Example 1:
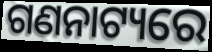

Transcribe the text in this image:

ଗଣନାଟ୍ୟରେ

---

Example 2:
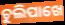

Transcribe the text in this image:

ଚୁଲିପାଖେ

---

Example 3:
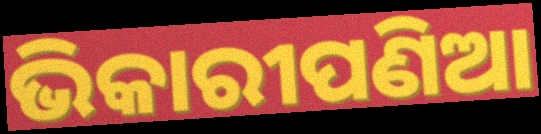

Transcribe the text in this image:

ଭିକାରୀପଣିଆ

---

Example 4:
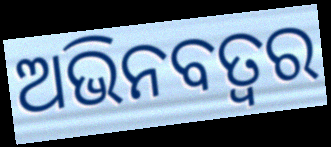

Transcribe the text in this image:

ଅଭିନବତ୍ୱର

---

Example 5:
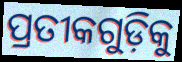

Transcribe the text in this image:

ପ୍ରତୀକଗୁଡ଼ିକୁ